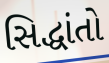
સિદ્ધાંતો